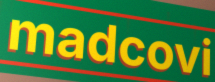
madcovi